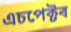
এচপেক্টৰ